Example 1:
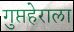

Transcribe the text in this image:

गुप्तहेराला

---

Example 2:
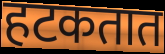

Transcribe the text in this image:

हटकतात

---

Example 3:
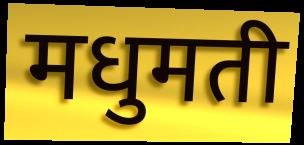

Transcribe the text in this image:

मधुमती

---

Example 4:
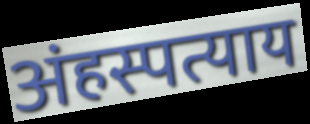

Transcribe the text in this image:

अंहस्पत्याय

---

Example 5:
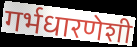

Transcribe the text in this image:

गर्भधारणेशी